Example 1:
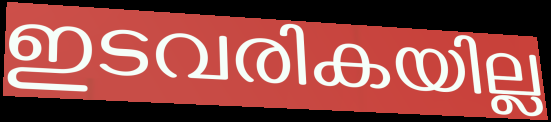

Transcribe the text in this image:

ഇടവരികയില്ല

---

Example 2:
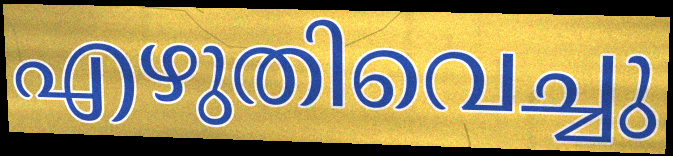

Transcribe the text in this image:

എഴുതിവെച്ചു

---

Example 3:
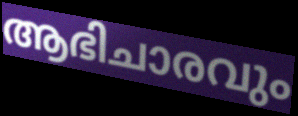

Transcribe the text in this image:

ആഭിചാരവും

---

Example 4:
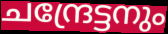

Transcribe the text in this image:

ചന്ദ്രേട്ടനും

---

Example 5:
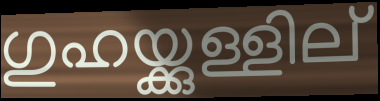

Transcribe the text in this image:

ഗുഹയ്ക്കുള്ളില്